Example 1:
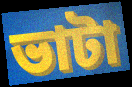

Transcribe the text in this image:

ভাটা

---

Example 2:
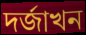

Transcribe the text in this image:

দৰ্জাখন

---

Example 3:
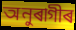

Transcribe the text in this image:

অনুৰাগীৰ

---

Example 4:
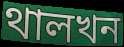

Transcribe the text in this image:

থালখন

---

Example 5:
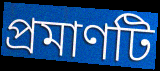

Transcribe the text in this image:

প্ৰমাণটি